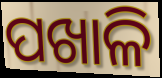
ପଖାଳି